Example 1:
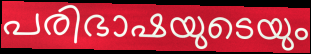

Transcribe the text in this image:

പരിഭാഷയുടെയും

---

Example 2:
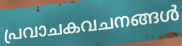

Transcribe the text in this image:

പ്രവാചകവചനങ്ങൾ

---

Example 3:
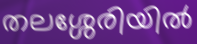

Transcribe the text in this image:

തലശ്ശേരിയിൽ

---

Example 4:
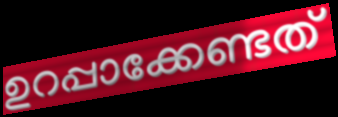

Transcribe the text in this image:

ഉറപ്പാക്കേണ്ടത്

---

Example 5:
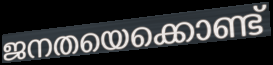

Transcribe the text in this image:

ജനതയെക്കൊണ്ട്